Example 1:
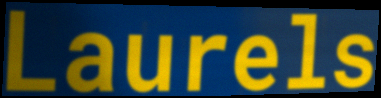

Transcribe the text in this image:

Laurels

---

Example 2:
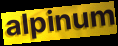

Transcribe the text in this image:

alpinum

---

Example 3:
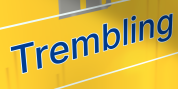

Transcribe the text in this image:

Trembling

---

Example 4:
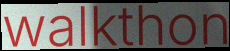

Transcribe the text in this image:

walkthon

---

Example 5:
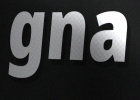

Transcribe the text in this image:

gna